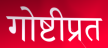
गोष्टीप्रत